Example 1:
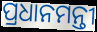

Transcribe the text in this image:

ପ୍ରଧାନମନ୍ତୀ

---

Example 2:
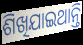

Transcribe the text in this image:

ଶିଖିଯାଇଥାନ୍ତି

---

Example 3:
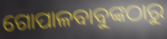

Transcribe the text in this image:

ଗୋପାଳବାବୁଙ୍କଠାରୁ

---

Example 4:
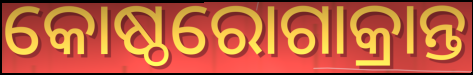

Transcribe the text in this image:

କୋଷ୍ଠରୋଗାକ୍ରାନ୍ତ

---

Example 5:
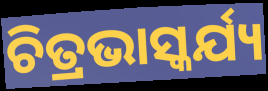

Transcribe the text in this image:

ଚିତ୍ରଭାସ୍କର୍ଯ୍ୟ